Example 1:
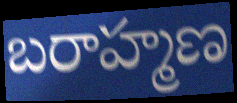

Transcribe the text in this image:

బరాహ్మణ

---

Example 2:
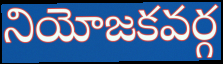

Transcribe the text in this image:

నియోజకవర్గ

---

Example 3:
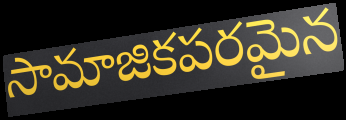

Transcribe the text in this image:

సామాజికపరమైన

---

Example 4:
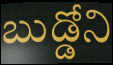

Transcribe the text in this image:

బుడ్డోని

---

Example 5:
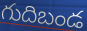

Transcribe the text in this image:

గుదిబండ